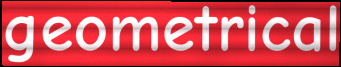
geometrical